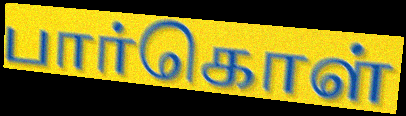
பார்கொள்